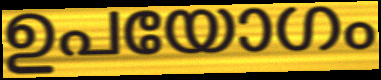
ഉപയോഗം